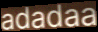
adadaa